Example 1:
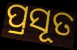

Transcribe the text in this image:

ପ୍ରସୂତ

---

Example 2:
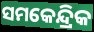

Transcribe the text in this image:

ସମକେନ୍ଦ୍ରିକ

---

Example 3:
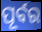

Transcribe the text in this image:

ପୂର୍ବର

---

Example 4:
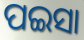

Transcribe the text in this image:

ପଇସା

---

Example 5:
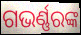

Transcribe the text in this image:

ଗଭର୍ଣ୍ଣରଙ୍କ